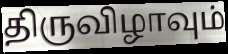
திருவிழாவும்